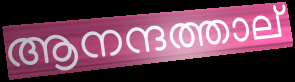
ആനന്ദത്താല്